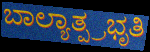
ಬಾಲ್ಯಾತ್ಪ್ರಭೃತಿ